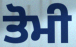
ਤੋਮੀ